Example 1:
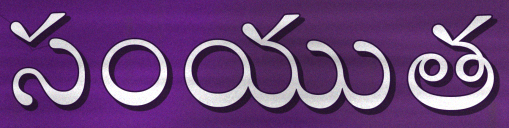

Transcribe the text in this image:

సంయుత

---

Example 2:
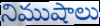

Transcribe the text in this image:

నిముషాలు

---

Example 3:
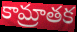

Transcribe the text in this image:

కామ్రాతక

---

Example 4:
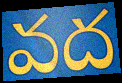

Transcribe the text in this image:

వద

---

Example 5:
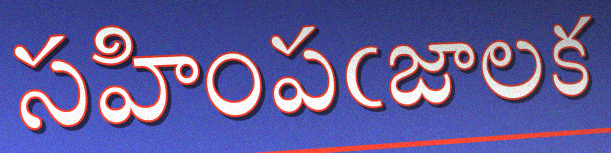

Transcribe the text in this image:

సహింపఁజాలక